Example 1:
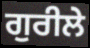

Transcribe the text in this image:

ਗੁਰੀਲੇ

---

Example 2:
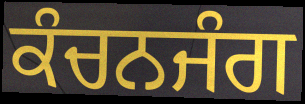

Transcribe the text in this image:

ਕੰਚਨਜੰਗ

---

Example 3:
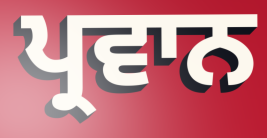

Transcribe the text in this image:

ਪ੍ਰਵਾਨ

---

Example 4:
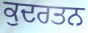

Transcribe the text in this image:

ਕੁਦਰਤਨ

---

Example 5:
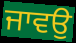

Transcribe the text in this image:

ਜਾਵਉ